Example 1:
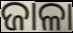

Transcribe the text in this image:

ଜାଳା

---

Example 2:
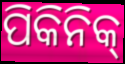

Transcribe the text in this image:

ପିକିନିକ୍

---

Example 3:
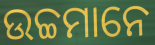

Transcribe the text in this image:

ଉଚ୍ଚମାନେ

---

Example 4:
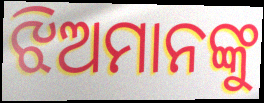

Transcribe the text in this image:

ଝିଅମାନଙ୍କୁ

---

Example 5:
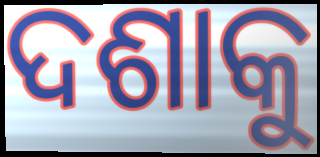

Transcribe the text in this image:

ଦଶାକୁ